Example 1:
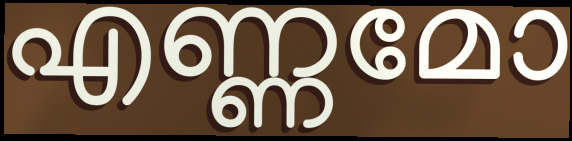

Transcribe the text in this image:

എണ്ണമോ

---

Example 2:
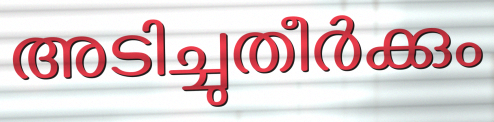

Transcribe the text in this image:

അടിച്ചുതീർക്കും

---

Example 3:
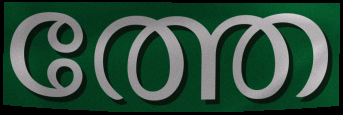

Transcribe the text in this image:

ത്തേ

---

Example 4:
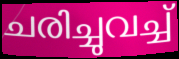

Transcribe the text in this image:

ചരിച്ചുവച്ച്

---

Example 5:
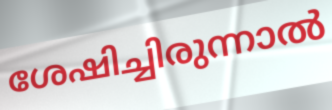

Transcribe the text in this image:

ശേഷിച്ചിരുന്നാൽ